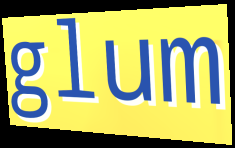
glum